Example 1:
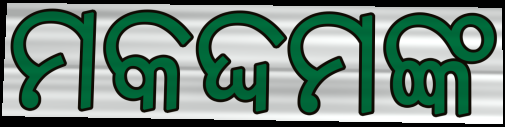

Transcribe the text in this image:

ମକଦ୍ଦମଙ୍କ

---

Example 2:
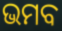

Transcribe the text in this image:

ଭମବ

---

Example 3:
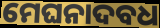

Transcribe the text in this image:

ମେଘନାଦବଧ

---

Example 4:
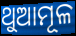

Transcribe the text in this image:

ଥୁଆମୂଳ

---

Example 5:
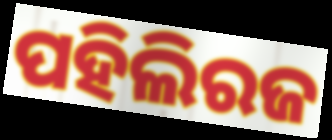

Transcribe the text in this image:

ପହିଲିରଜ